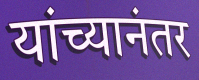
यांच्यानंतर